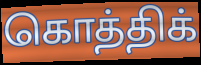
கொத்திக்